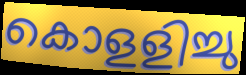
കൊളളിച്ചു